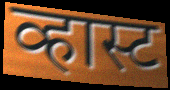
व्हास्ट